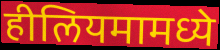
हीलियमामध्ये